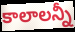
కాలాలన్నీ